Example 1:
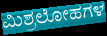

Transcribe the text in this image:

ಮಿಶ್ರಲೋಹಗಳ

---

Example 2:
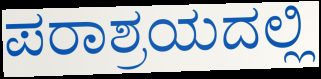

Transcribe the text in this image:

ಪರಾಶ್ರಯದಲ್ಲಿ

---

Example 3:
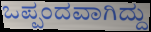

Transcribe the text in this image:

ಒಪ್ಪಂದವಾಗಿದ್ದು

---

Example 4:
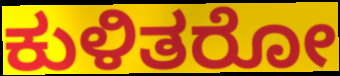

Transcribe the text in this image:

ಕುಳಿತರೋ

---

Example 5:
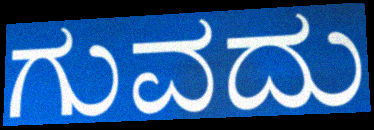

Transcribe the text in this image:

ಗುವದು